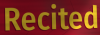
Recited